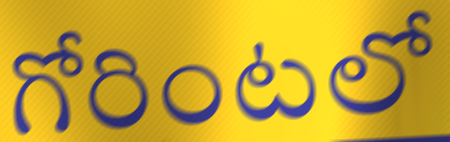
గోరింటలో